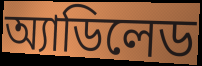
অ্যাডিলেড